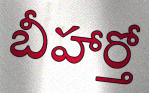
బీహార్తో